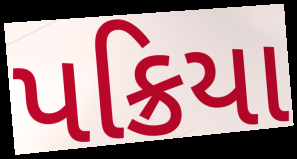
પક્રિયા